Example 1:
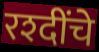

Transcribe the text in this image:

रश्दींचे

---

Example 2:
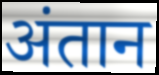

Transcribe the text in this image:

अंतान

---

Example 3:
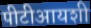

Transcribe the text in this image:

पीटीआयशी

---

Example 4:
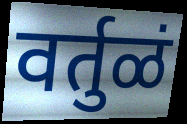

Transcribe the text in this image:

वर्तुळं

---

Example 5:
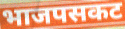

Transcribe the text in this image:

भाजपसकट